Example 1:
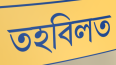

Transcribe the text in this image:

তহবিলত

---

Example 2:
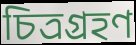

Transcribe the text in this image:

চিত্ৰগ্ৰহণ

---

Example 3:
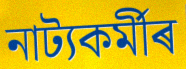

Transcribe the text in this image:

নাট্যকৰ্মীৰ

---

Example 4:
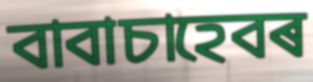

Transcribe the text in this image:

বাবাচাহেবৰ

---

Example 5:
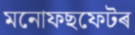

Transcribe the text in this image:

মনোফছফেটৰ